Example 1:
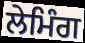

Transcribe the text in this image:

ਲੇਮਿੰਗ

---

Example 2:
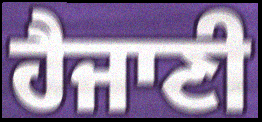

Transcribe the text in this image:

ਹੈਜਾਣੀ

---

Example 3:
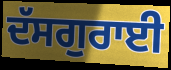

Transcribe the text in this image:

ਦੱਸਗੁਰਾਈ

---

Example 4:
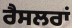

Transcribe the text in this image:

ਰੈਸਲਰਾਂ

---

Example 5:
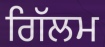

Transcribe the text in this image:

ਗਿੱਲਮ